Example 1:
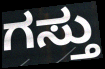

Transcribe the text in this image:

ಗಸ್ತು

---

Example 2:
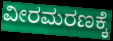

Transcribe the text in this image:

ವೀರಮರಣಕ್ಕೆ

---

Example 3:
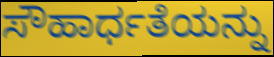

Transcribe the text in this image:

ಸೌಹಾರ್ಧತೆಯನ್ನು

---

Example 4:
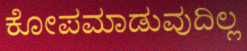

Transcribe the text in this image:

ಕೋಪಮಾಡುವುದಿಲ್ಲ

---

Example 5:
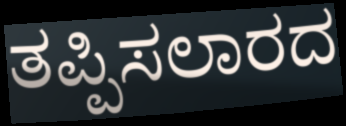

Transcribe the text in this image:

ತಪ್ಪಿಸಲಾರದ